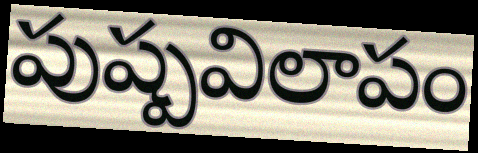
పుష్పవిలాపం